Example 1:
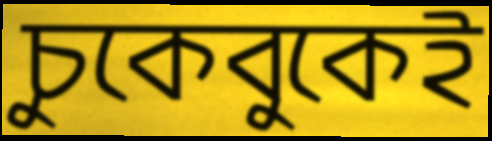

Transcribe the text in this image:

চুকেবুকেই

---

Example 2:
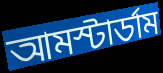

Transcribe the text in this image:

আমস্টার্ডাম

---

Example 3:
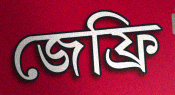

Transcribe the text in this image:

জেফ্রি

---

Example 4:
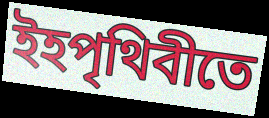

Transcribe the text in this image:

ইহপৃথিবীতে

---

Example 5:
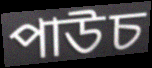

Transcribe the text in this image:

পাউচ